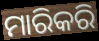
ମାରିକରି